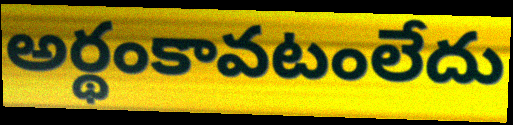
అర్థంకావటంలేదు